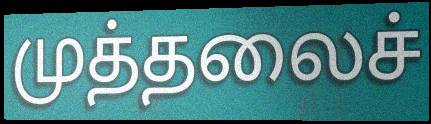
முத்தலைச்